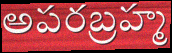
అపరబ్రహ్మ